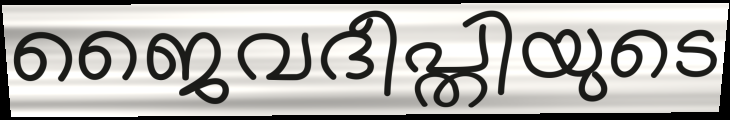
ജൈവദീപ്തിയുടെ